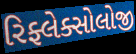
રિફ્લેક્સોલોજી